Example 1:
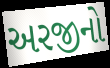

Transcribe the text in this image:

અરજીનો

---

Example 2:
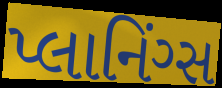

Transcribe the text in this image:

પ્લાનિંગ્સ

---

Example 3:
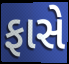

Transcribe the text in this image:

ફાસે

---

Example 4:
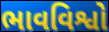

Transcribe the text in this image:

ભાવવિશ્વો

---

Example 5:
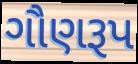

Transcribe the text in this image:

ગૌણરૂપ